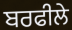
ਬਰਫੀਲੇ